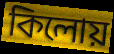
কিলোয়